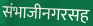
संभाजीनगरसह